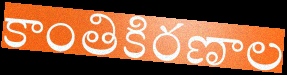
కాంతికిరణాల